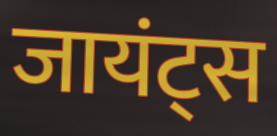
जायंट्स